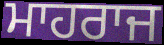
ਮਾਹਰਾਜ